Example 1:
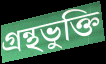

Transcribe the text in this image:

গ্রন্থভুক্তি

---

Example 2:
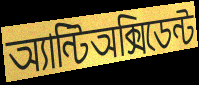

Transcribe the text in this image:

অ্যান্টিঅক্সিডেন্ট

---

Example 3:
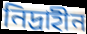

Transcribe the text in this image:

নিদ্রাহীন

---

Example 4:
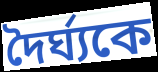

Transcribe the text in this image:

দৈর্ঘ্যকে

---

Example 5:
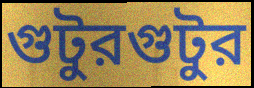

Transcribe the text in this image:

গুটুরগুটুর